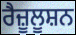
ਰੈਜ਼ੂਲੂਸ਼ਨ